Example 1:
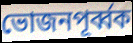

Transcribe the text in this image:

ভোজনপূর্ব্বক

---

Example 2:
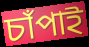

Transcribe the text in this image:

চাঁপাই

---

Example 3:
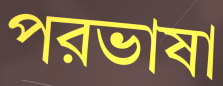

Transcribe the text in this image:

পরভাষা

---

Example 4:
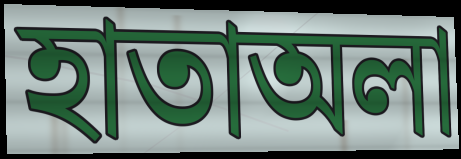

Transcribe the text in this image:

হাতাঅলা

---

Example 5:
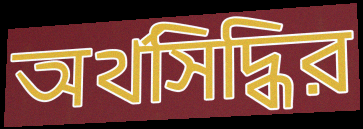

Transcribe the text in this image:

অর্থসিদ্ধির